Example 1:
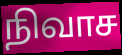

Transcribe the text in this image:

நிவாச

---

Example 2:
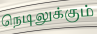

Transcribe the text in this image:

நெடிலுக்கும்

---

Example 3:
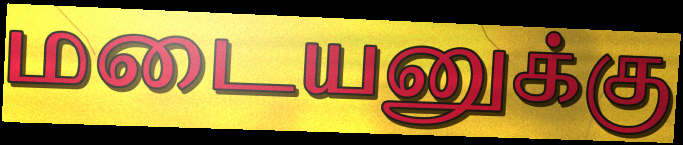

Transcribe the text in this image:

மடையனுக்கு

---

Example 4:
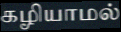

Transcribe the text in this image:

கழியாமல்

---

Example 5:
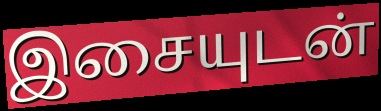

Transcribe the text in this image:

இசையுடன்